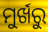
ମୁର୍ଖରୁ